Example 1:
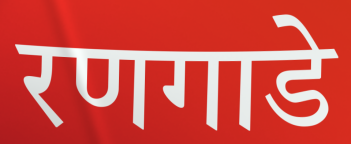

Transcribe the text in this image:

रणगाडे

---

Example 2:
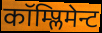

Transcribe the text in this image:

कॉम्प्लिमेन्ट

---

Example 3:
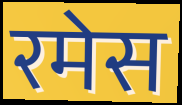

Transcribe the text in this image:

रमेस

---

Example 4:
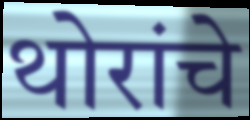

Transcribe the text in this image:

थोरांचे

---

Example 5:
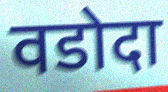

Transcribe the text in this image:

वडोदा